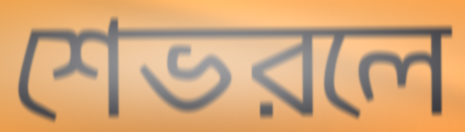
শেভরলে